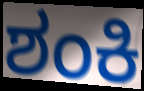
ಶಂಕಿ